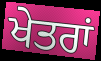
ਖੇਤਰਾਂ